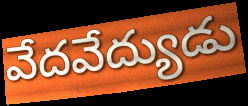
వేదవేద్యుడు